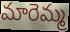
మారెమ్మ